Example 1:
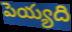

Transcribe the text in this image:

పెయ్యది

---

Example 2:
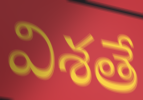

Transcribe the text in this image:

విశతే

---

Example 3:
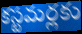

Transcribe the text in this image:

కస్టమర్లకు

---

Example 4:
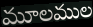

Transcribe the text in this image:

మూలముల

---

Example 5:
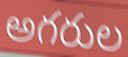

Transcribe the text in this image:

అగరుల